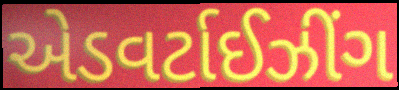
એડવર્ટાઈઝીંગ